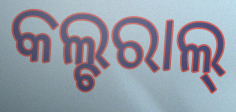
କଲ୍ଚରାଲ୍